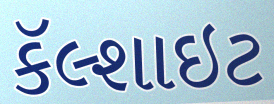
કૅલ્શાઇટ